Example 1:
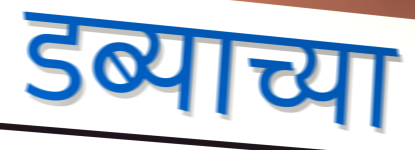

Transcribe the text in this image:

डब्याच्या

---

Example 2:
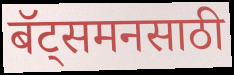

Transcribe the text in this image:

बॅट्समनसाठी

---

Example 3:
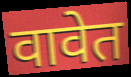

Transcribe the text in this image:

वावेत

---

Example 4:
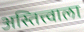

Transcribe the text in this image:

अस्तित्त्वाला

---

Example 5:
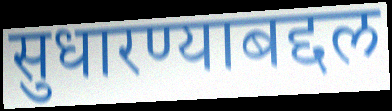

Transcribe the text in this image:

सुधारण्याबद्दल